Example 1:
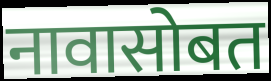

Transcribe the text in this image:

नावासोबत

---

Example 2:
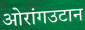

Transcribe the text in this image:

ओरांगउटान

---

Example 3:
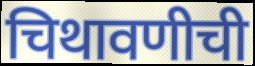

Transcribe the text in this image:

चिथावणीची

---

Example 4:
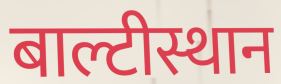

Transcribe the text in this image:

बाल्टीस्थान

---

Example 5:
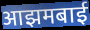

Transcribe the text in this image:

आझमबाई